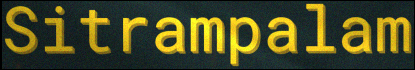
Sitrampalam